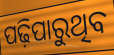
ପଢ଼ିପାରୁଥିବ